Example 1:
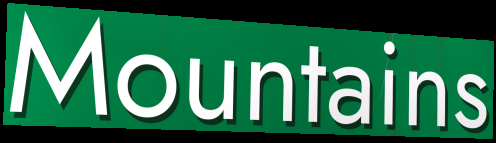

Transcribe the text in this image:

Mountains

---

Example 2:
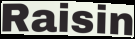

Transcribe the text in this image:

Raisin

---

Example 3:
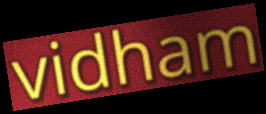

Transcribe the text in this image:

vidham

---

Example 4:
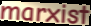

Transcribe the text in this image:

marxist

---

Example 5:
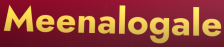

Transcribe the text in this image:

Meenalogale